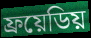
ফ্রয়েডিয়